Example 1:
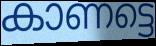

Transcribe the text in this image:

കാണട്ടെ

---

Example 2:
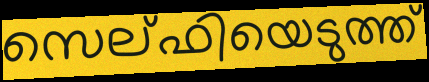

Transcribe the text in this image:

സെല്ഫിയെടുത്ത്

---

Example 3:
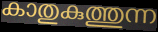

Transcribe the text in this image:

കാതുകുത്തുന്ന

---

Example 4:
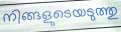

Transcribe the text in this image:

നിങ്ങളുടെയടുത്തു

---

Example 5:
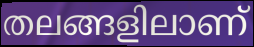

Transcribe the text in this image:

തലങ്ങളിലാണ്